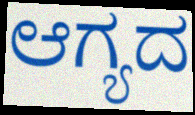
ಆಗ್ಯದ